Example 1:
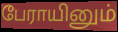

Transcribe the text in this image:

பேராயினும்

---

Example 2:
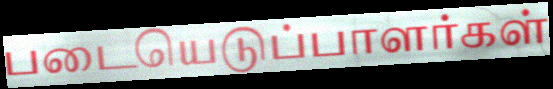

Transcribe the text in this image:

படையெடுப்பாளர்கள்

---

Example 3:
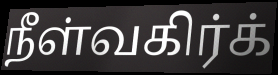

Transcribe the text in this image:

நீள்வகிர்க்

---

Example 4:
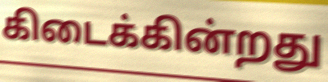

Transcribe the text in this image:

கிடைக்கின்றது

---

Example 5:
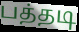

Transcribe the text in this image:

பத்தடி